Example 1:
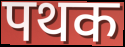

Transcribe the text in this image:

पथक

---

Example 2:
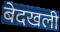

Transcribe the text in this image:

बेदखली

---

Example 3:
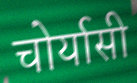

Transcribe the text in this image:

चोर्यासी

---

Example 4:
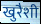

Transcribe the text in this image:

खुरैशी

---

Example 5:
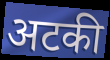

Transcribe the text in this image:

अटकी